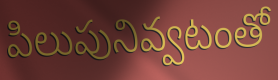
పిలుపునివ్వటంతో